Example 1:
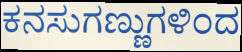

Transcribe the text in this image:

ಕನಸುಗಣ್ಣುಗಳಿಂದ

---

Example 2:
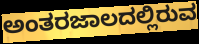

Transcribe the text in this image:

ಅಂತರಜಾಲದಲ್ಲಿರುವ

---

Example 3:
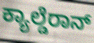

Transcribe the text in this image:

ಕ್ಯಾಲ್ಡೆರಾನ್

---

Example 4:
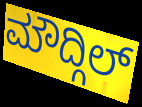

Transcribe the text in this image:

ಮೌದ್ಗಿಲ್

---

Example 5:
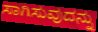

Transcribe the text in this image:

ಸಾಗಿಸುವುದನ್ನು